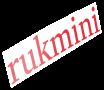
rukmini